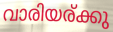
വാരിയര്ക്കു